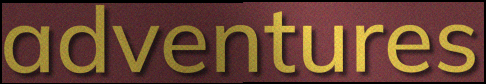
adventures